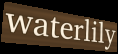
waterlily